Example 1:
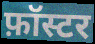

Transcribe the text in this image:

फ़ॉस्टर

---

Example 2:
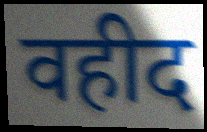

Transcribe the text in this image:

वहीद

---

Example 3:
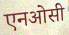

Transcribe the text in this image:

एनओसी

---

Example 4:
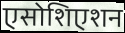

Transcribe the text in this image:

एसोशिएशन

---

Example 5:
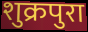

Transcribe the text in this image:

शुक्रपुरा